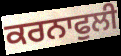
ਕਰਨਾਫੁਲੀ